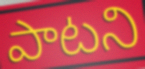
పాటని